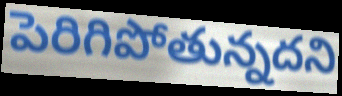
పెరిగిపోతున్నదని